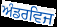
ਅੰਡਰਵਿਜ